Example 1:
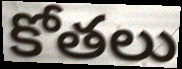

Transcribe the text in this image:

కోతలు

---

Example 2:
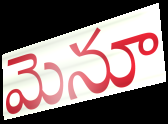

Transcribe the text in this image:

మెనూ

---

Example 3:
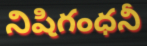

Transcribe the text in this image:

నిషిగంధనీ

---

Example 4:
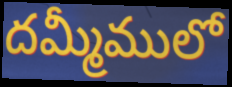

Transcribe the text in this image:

దమ్మీములో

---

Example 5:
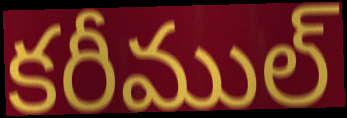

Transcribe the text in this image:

కరీముల్